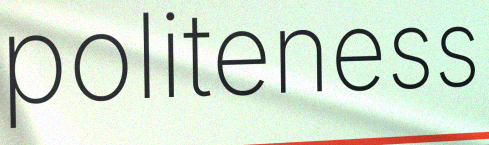
politeness